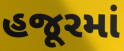
હજૂરમાં